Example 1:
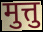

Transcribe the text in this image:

मुत्तु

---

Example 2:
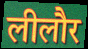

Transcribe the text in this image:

लीलौर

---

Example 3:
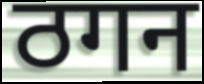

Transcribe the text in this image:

ठगन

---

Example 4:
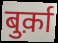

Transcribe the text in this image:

बुर्क़ा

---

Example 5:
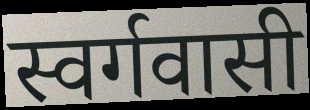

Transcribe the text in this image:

स्वर्गवासी